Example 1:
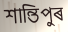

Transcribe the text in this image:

শান্তিপুৰ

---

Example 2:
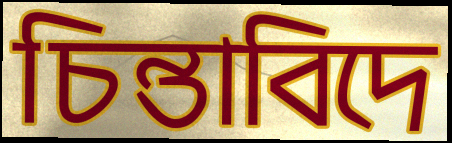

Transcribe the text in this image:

চিন্তাবিদে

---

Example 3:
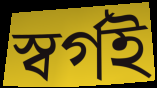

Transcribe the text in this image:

স্বৰ্গই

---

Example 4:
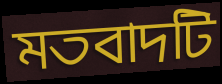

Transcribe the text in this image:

মতবাদটি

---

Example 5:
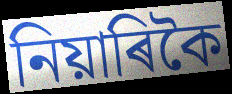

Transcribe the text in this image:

নিয়াৰিকৈ